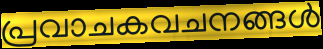
പ്രവാചകവചനങ്ങൾ